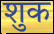
शुक